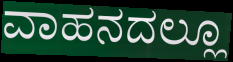
ವಾಹನದಲ್ಲೂ